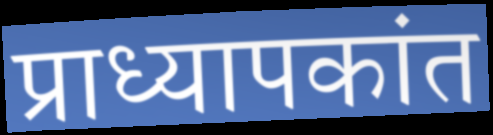
प्राध्यापकांत